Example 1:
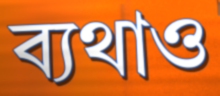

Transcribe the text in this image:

ব্যথাও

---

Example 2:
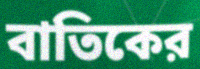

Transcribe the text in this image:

বাতিকের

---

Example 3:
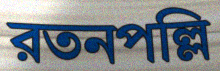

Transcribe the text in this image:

রতনপল্লি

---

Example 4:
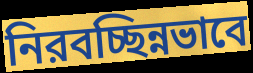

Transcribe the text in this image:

নিরবচ্ছিন্নভাবে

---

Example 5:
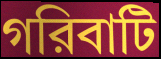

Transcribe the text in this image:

গরিবাটি